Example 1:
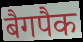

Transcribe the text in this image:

बैगपैक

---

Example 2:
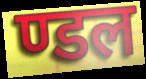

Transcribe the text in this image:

ण्डल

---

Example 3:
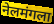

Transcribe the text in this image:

नेलमंगला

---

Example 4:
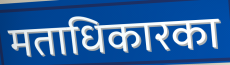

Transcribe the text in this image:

मताधिकारका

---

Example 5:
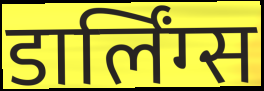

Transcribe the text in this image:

डार्लिंग्स